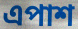
এপাশ